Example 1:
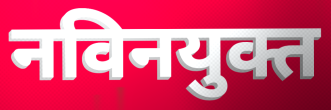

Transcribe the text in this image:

नविनयुक्त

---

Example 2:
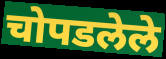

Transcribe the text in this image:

चोपडलेले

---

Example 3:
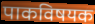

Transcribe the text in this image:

पाकविषयक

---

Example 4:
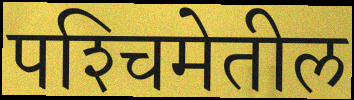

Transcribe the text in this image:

पश्चिमेतील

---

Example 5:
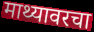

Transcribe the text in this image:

माथ्यावरचा